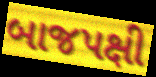
બાજપક્ષી